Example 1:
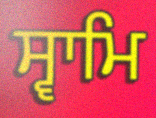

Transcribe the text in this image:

ਸ੍ਵਾਮਿ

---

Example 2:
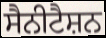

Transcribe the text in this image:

ਸੈਨੀਟੈਸ਼ਨ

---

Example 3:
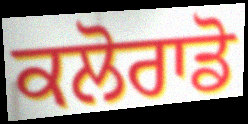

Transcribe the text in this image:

ਕਲੋਰਾਡੋ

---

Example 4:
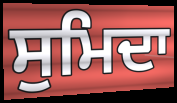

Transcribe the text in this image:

ਸੁਮਿਦਾ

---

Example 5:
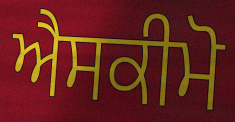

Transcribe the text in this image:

ਐਸਕੀਮੋ